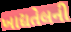
ખાદ્યતેલની